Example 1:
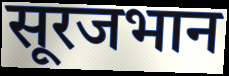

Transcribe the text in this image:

सूरजभान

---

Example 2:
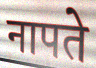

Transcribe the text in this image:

नापते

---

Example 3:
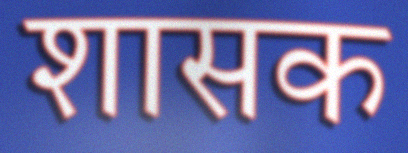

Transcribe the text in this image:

शासक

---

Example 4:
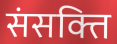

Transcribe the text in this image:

संसक्ति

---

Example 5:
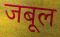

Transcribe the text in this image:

जबूल